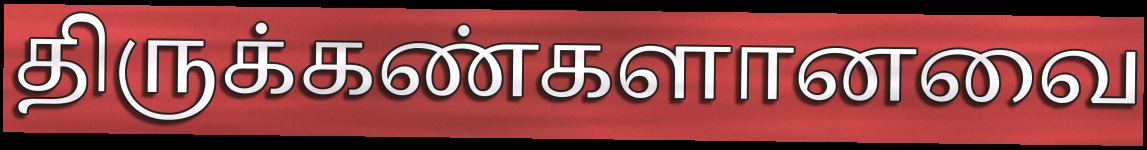
திருக்கண்களானவை